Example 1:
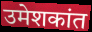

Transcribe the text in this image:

उमेशकांत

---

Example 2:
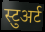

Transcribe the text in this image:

स्टुअर्ट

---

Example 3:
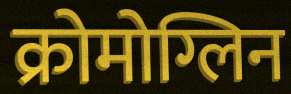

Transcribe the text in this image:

क्रोमोग्लिन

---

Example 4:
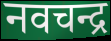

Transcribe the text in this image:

नवचन्द्र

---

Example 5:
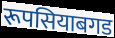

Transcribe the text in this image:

रूपसियाबगड